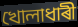
খোলাধাৰী